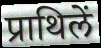
प्राथिलें